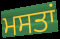
ਮਸਤਾਂ